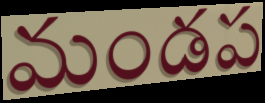
మండప